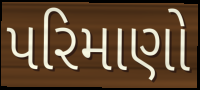
પરિમાણો